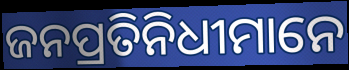
ଜନପ୍ରତିନିଧୀମାନେ